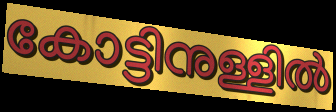
കോട്ടിനുള്ളിൽ